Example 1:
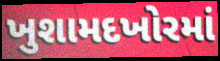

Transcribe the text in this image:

ખુશામદખોરમાં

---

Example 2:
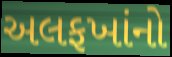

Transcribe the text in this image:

અલફખાંનો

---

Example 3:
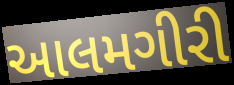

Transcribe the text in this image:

આલમગીરી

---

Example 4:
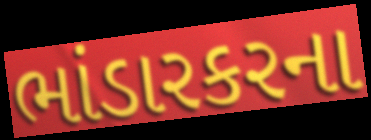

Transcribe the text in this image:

ભાંડારકરના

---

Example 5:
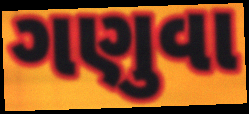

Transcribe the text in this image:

ગણુવા